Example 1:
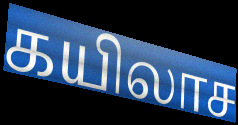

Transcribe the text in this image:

கயிலாச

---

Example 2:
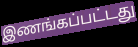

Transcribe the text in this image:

இணங்கப்பட்டது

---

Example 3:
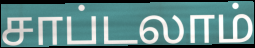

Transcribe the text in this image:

சாப்டலாம்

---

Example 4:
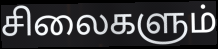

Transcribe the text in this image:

சிலைகளும்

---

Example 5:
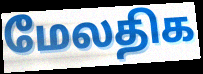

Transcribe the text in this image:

மேலதிக